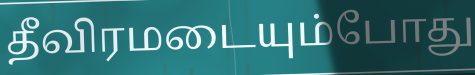
தீவிரமடையும்போது